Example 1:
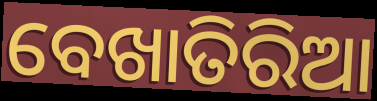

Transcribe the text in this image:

ବେଖାତିରିଆ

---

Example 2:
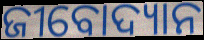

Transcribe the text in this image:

ଜୀବୋଦ୍ୟାନ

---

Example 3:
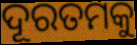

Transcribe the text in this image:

ଦୂରତମକୁ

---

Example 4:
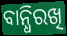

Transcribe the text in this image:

ବାନ୍ଧିରଖି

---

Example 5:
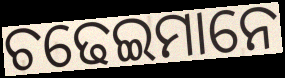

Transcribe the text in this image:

ଚଢେଇମାନେ